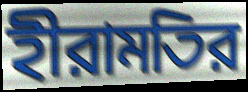
হীরামতির